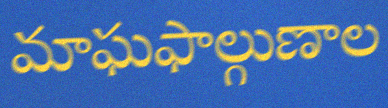
మాఘఫాల్గుణాల